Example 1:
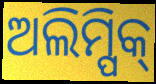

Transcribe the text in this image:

ଅଲିମ୍ପିକ୍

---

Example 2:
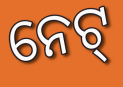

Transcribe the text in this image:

ନେଟ୍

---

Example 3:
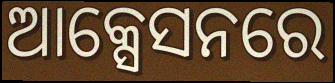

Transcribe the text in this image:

ଆକ୍ସେସନରେ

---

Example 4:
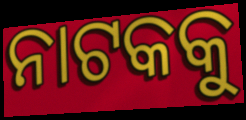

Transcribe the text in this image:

ନାଟକକୁ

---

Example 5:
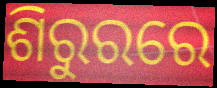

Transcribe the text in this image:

ଶିରୁରରେ